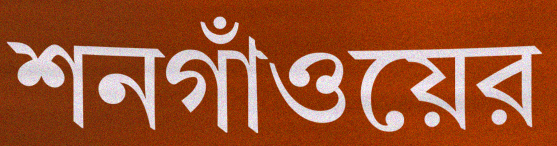
শনগাঁওয়ের